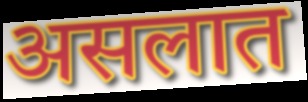
असलात